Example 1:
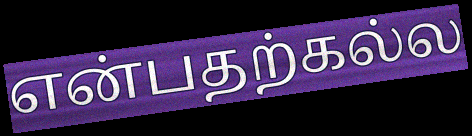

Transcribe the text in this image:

என்பதற்கல்ல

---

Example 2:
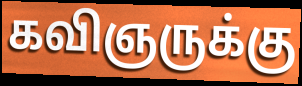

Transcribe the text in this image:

கவிஞருக்கு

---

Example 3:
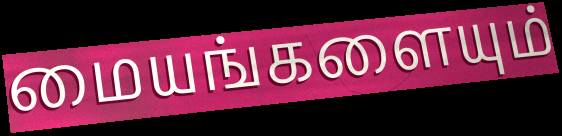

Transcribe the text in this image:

மையங்களையும்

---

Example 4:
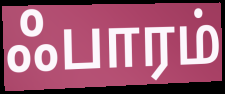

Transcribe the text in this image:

ஃபாரம்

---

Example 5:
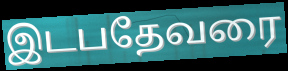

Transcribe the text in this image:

இடபதேவரை